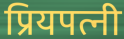
प्रियपत्नी